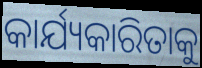
କାର୍ଯ୍ୟକାରିତାକୁ